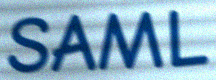
SAML